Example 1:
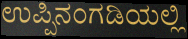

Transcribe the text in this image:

ಉಪ್ಪಿನಂಗಡಿಯಲ್ಲಿ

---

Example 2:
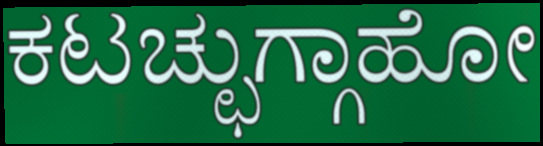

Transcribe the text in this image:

ಕಟಚ್ಛುಗ್ಗಾಹೋ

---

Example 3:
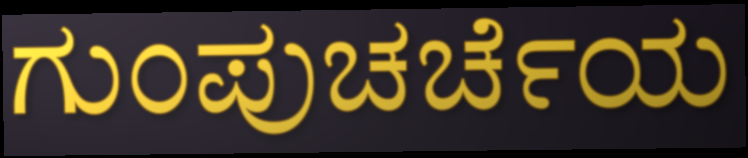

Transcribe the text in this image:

ಗುಂಪುಚರ್ಚೆಯ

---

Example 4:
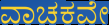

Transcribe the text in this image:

ವಾಚಕವೇ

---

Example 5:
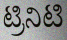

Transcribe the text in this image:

ಟ್ರಿನಿಟಿ